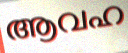
ആവഹ